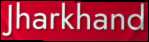
Jharkhand